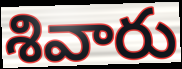
శివారు